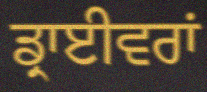
ਡ੍ਰਾਈਵਰਾਂ